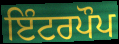
ਇੰਟਰਪੌਪ